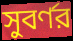
সুবর্ণর